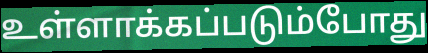
உள்ளாக்கப்படும்போது